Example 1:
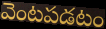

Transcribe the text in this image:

వెంటపడటం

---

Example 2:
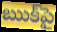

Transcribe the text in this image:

ఋక్‌పై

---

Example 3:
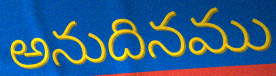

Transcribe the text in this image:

అనుదినము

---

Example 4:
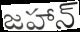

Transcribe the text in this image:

జహాన్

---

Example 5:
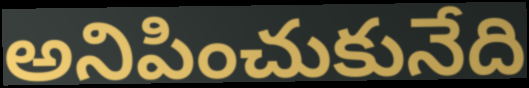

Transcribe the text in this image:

అనిపించుకునేది